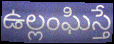
ఉల్లంఘిస్తే